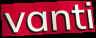
vanti